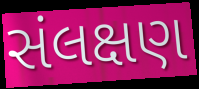
સંલક્ષણ